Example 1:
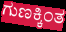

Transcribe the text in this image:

ಗುಣಕ್ಕಿಂತ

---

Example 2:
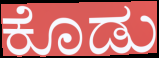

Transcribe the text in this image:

ಕೊಡು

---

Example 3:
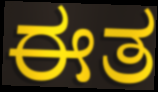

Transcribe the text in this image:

ಈತ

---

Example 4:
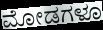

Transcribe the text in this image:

ಮೋಡಗಳೂ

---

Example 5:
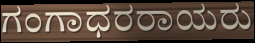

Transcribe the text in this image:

ಗಂಗಾಧರರಾಯರು